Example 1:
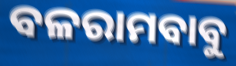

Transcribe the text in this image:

ବଳରାମବାବୁ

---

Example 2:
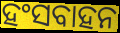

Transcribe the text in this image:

ହଂସବାହନ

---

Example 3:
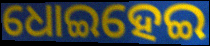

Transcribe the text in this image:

ଧୋଇହେଇ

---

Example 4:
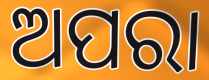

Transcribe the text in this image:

ଅପରା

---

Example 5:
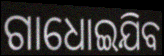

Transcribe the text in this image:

ଗାଧୋଇଯିବ